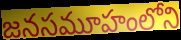
జనసమూహంలోని